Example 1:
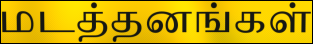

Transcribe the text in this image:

மடத்தனங்கள்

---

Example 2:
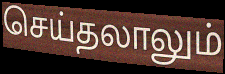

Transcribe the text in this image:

செய்தலாலும்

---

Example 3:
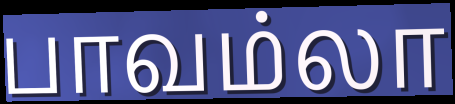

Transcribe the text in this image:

பாவம்லா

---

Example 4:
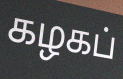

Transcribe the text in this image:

கழகப்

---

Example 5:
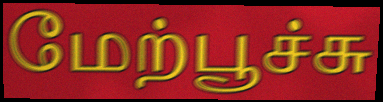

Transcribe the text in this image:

மேற்பூச்சு